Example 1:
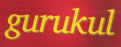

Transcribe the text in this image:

gurukul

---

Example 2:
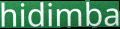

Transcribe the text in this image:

hidimba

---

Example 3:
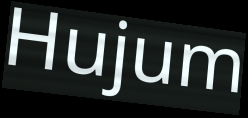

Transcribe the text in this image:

Hujum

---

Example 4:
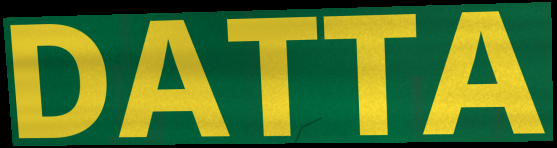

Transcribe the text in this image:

DATTA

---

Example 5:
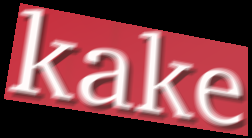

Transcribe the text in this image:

kake